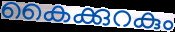
കൈക്കുറകും